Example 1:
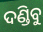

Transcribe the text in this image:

ଦଣ୍ଡିବୁ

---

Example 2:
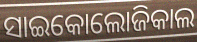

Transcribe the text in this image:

ସାଇକୋଲୋଜିକାଲ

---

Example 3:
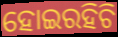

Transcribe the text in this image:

ହୋଇରହିଚି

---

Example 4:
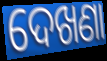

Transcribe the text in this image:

ଦେଖଣା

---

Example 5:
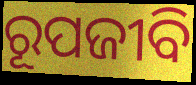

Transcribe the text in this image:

ରୂପଜୀବି